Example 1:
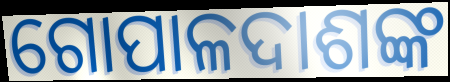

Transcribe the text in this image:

ଗୋପାଳଦାଶଙ୍କ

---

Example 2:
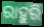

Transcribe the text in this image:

ରାହୁରି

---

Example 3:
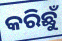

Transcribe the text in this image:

କରିଛୁଁ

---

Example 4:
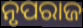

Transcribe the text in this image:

ନୃପରାଜ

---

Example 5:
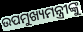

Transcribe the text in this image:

ଉପମୁଖ୍ୟମନ୍ତ୍ରୀଙ୍କୁ